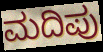
ಮದಿಪು